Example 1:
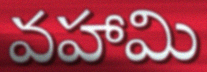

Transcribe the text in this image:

వహామి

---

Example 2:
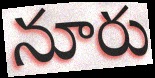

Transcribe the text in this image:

నూరు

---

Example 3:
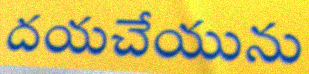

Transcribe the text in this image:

దయచేయును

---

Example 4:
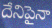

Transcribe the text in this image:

దేనిపైనా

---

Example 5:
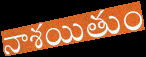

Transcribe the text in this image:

నాశయితుం